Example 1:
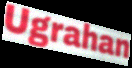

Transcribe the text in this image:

Ugrahan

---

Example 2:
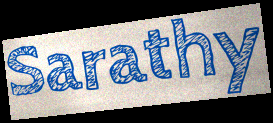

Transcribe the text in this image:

Sarathy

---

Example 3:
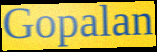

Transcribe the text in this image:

Gopalan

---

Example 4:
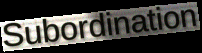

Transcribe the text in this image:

Subordination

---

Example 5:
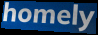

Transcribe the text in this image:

homely